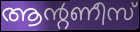
ആന്റണീസ്